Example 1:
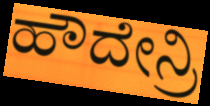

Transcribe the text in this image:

ಹೌದೇನ್ರಿ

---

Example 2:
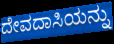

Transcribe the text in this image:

ದೇವದಾಸಿಯನ್ನು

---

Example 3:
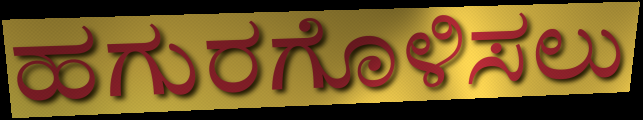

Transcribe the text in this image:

ಹಗುರಗೊಳಿಸಲು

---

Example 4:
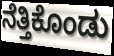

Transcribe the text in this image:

ನೆತ್ತಿಕೊಂಡು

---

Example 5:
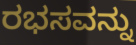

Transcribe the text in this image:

ರಭಸವನ್ನು